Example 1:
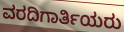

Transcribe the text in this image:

ವರದಿಗಾರ್ತಿಯರು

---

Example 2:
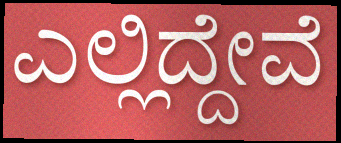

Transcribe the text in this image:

ಎಲ್ಲಿದ್ದೇವೆ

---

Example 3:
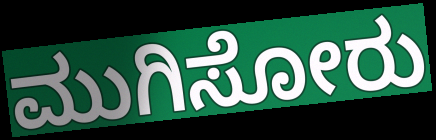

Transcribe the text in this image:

ಮುಗಿಸೋರು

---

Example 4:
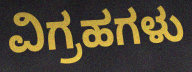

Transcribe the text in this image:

ವಿಗ್ರಹಗಳು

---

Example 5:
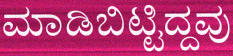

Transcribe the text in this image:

ಮಾಡಿಬಿಟ್ಟಿದ್ದವು